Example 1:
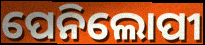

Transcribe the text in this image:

ପେନିଲୋପୀ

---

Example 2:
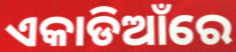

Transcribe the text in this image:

ଏକାଡିଆଁରେ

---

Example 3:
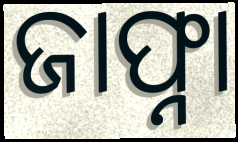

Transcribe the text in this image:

ଜାଫ୍ନା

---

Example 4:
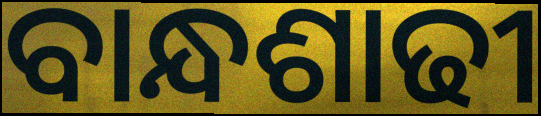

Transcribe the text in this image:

ବାନ୍ଧଶାଢୀ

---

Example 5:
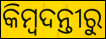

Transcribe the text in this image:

କିମ୍ବଦନ୍ତୀରୁ